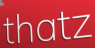
thatz